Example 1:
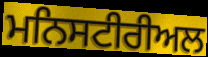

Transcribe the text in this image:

ਮਨਿਸਟੀਰੀਅਲ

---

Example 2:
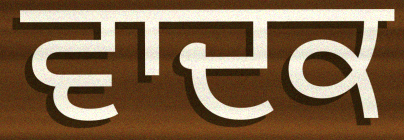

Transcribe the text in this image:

ਵਾਦਕ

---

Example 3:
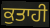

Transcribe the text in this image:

ਕੁਤਾਹੀ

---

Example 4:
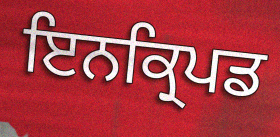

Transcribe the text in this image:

ਇਨਕ੍ਰਿਪਡ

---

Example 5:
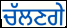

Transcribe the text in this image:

ਚੱਲਣਗੇ